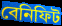
বেনিফিট